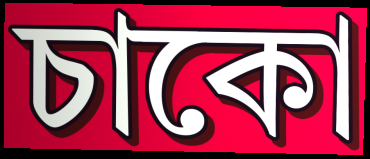
চাকো